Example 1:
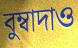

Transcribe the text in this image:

বুম্বাদাও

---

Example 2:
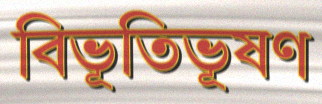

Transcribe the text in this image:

বিভূতিভূষণ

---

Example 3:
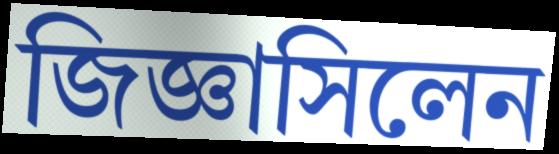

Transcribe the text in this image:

জিজ্ঞাসিলেন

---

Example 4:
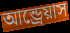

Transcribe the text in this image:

আন্ড্রেয়াস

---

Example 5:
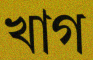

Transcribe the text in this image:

খাগ